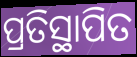
ପ୍ରତିସ୍ଥାପିତ